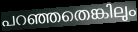
പറഞ്ഞതെങ്കിലും